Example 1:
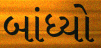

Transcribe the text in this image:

બાંધ્યો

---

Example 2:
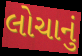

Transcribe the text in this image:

લોચાનું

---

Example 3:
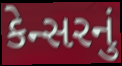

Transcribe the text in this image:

કેન્સરનું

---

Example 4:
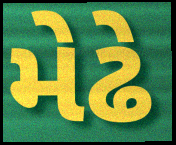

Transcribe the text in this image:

મેઢે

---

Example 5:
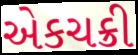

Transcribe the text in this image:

એકચક્રી